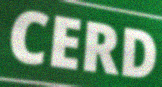
CERD